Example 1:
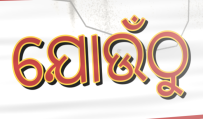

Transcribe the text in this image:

ଯୋଉଁଠୁ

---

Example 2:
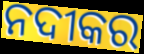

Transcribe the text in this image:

ନଦୀକର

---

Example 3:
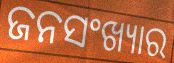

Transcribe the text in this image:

ଜନସଂଖ୍ଯାର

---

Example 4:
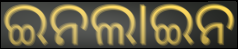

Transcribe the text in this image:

ଇନଲାଇନ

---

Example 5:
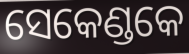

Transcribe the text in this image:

ସେକେଣ୍ଡକେ